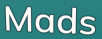
Mads